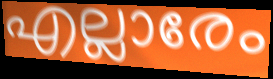
എല്ലാരേം